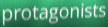
protagonists